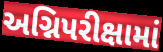
અગ્નિપરીક્ષામાં